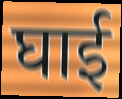
घाई